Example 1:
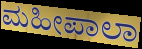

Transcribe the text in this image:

ಮಹೀಪಾಲಾ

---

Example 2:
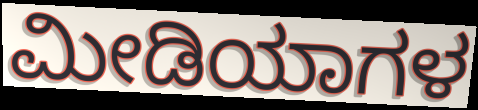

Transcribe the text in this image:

ಮೀಡಿಯಾಗಳ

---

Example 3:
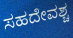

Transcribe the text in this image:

ಸಹದೇವಶ್ಚ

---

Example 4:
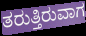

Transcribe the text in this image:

ತರುತ್ತಿರುವಾಗ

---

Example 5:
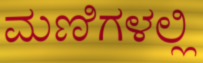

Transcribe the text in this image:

ಮಣಿಗಳಲ್ಲಿ